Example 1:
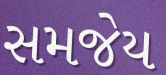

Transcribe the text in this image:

સમજેય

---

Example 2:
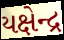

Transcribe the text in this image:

યક્ષેન્દ્ર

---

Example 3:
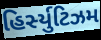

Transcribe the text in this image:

હિર્સ્યુટિઝમ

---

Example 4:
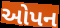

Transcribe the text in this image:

ઓપન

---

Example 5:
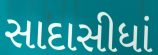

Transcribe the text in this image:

સાદાસીધાં